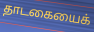
தாடகையைக்